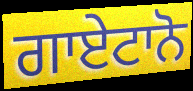
ਗਾਏਟਾਨੋ